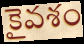
కైవశం